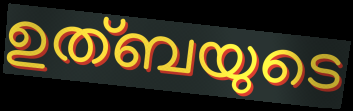
ഉത്ബയുടെ